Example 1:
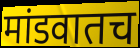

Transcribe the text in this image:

मांडवातच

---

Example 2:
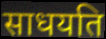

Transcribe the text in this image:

साधयति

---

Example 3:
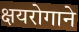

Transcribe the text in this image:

क्षयरोगाने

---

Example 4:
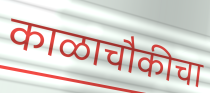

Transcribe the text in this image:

काळाचौकीचा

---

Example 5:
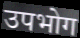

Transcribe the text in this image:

उपभोग